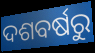
ଦଶବର୍ଷରୁ